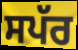
ਸਪੱਰ